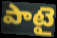
పాటై